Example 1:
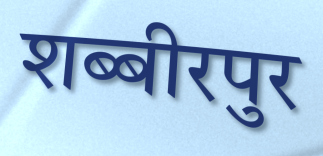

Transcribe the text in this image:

शब्‍बीरपुर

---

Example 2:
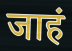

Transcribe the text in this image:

जाहं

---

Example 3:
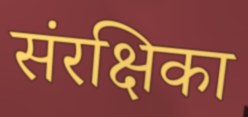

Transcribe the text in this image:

संरक्षिका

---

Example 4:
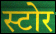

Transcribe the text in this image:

स्‍टोर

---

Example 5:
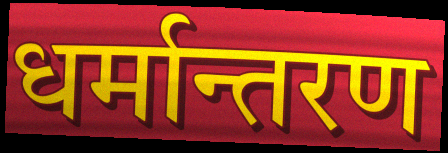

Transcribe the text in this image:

धर्मान्तरण